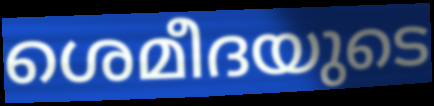
ശെമീദയുടെ